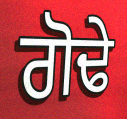
ਗੋਢੇ